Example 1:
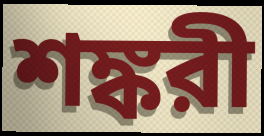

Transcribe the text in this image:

শঙ্করী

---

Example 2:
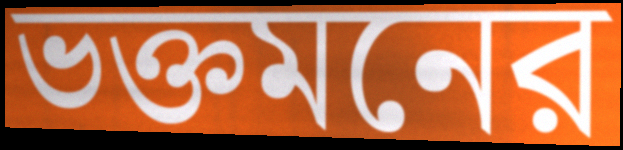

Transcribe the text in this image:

ভক্তমনের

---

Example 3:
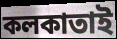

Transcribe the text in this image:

কলকাতাই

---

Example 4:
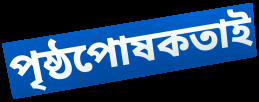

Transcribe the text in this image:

পৃষ্ঠপোষকতাই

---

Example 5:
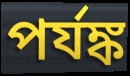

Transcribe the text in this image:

পর্যঙ্ক